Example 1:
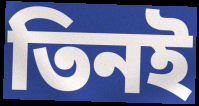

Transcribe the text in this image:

তিনই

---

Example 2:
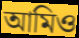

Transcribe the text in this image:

আমিও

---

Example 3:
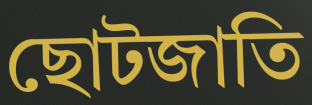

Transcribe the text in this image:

ছোটজাতি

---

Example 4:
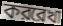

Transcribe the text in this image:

কররেখা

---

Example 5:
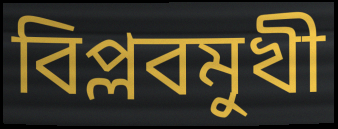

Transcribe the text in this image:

বিপ্লবমুখী